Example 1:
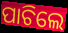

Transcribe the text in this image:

ପାଚିଲେ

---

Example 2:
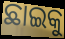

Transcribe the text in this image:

ଛାଇକୁ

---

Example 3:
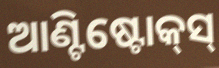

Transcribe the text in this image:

ଆଣ୍ଟିଷ୍ଟୋକ୍‍ସ୍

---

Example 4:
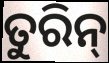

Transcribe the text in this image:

ତୁରିନ୍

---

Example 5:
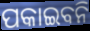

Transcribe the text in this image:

ପକାଇବନି